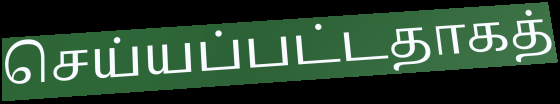
செய்யப்பட்டதாகத்